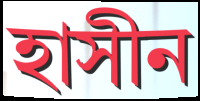
হাসীন